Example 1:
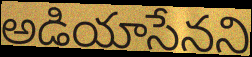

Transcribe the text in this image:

అడియాసేనని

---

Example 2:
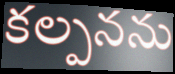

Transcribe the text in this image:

కల్పనను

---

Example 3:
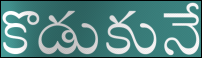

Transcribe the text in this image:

కొడుకునే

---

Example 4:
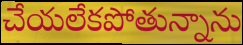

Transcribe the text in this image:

చేయలేకపోతున్నాను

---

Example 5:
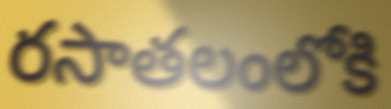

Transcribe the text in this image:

రసాతలంలోకి